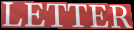
LETTER